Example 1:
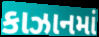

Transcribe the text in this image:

કાઝાનમાં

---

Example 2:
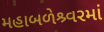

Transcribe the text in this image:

મહાબળેશ્ર્વરમાં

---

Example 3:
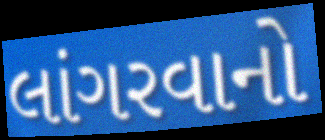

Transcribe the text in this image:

લાંગરવાનો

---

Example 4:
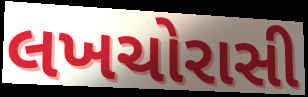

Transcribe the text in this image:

લખચોરાસી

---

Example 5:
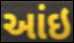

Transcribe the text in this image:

આંઇ